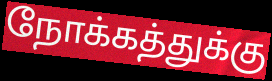
நோக்கத்துக்கு